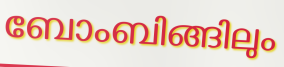
ബോംബിങ്ങിലും